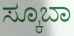
ಸ್ಕೂಬಾ